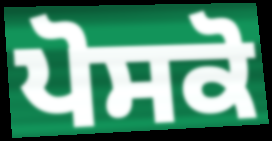
ਪੋਸਕੋ